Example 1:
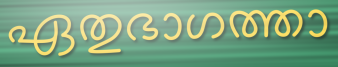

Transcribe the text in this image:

ഏതുഭാഗത്താ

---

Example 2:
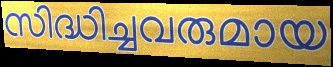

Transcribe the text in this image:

സിദ്ധിച്ചവരുമായ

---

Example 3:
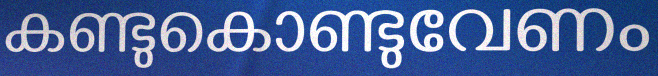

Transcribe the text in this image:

കണ്ടുകൊണ്ടുവേണം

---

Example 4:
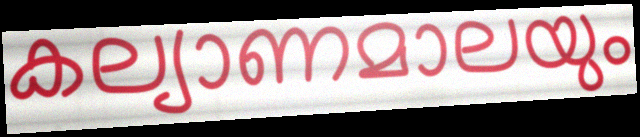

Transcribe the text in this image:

കല്യാണമാലയും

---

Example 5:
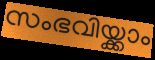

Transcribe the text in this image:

സംഭവിയ്ക്കാം